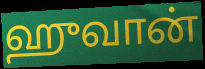
ஹுவான்